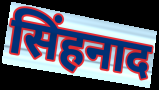
सिंहनाद